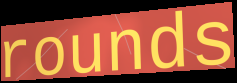
rounds